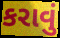
કરાવું